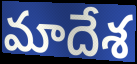
మాదేశ